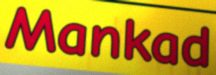
Mankad